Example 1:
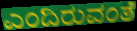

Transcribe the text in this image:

ಎಂದಿರುವಂತೆ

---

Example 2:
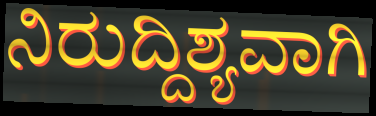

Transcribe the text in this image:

ನಿರುದ್ದಿಶ್ಯವಾಗಿ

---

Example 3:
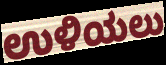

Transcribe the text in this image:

ಉಳಿಯಲು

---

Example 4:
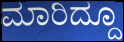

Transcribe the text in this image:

ಮಾರಿದ್ದೂ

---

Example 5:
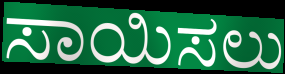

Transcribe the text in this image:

ಸಾಯಿಸಲು